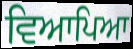
ਵਿਆਪਿਆ